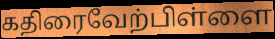
கதிரைவேற்பிள்ளை